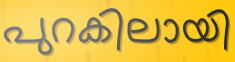
പുറകിലായി